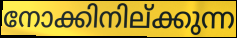
നോക്കിനില്ക്കുന്ന